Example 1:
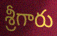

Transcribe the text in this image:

శ్రీగారు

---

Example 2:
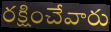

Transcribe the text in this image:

రక్షించేవారు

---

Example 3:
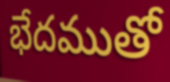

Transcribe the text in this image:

భేదముతో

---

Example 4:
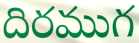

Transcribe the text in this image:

దిరముగ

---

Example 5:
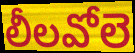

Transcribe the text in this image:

లీలవోలె